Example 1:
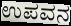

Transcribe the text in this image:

ಉಪವನ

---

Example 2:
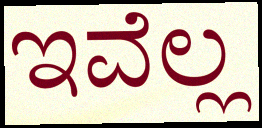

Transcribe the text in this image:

ಇವೆಲ್ಲ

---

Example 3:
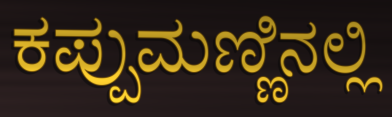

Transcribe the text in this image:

ಕಪ್ಪುಮಣ್ಣಿನಲ್ಲಿ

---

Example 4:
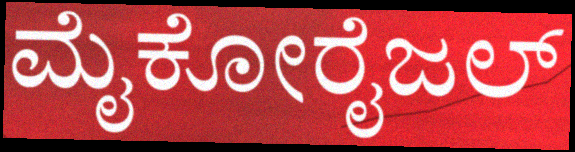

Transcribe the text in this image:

ಮೈಕೋರೈಜಲ್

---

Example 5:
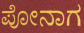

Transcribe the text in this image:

ಪೋನಾಗ